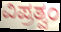
ವಿಪ್ರತ್ವಂ